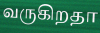
வருகிறதா